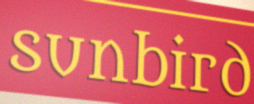
sunbird